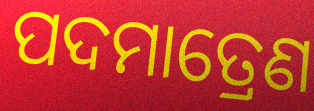
ପଦମାତ୍ରେଣ